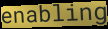
enabling